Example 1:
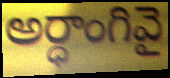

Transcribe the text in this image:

అర్ధాంగివై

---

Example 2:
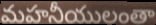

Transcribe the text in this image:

మహనీయులంతా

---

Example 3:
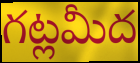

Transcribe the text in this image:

గట్లమీద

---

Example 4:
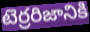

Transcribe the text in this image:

టెర్రరిజానికి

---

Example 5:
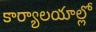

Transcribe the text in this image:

కార్యాలయాల్లో